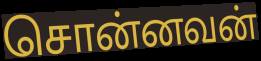
சொன்னவன்